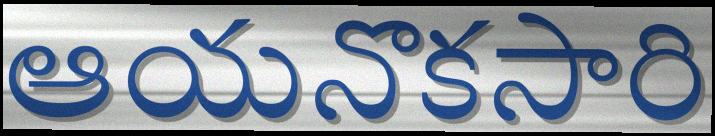
ఆయనొకసారి